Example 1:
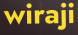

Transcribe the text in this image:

wiraji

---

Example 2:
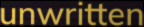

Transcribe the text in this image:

unwritten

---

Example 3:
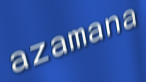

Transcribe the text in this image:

azamana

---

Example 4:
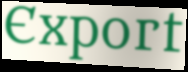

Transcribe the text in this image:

Export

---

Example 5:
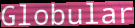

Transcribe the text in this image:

Globular